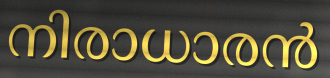
നിരാധാരൻ